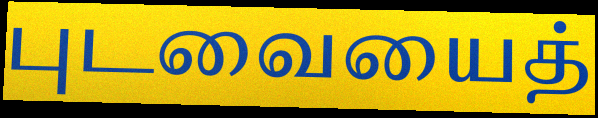
புடவையைத்